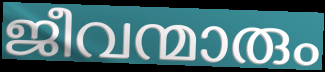
ജീവന്മാരും